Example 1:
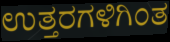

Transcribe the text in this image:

ಉತ್ತರಗಳಿಗಿಂತ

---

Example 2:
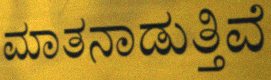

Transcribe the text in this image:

ಮಾತನಾಡುತ್ತಿವೆ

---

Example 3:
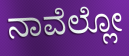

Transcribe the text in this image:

ನಾವೆಲ್ಲೋ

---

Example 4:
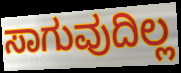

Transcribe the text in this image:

ಸಾಗುವುದಿಲ್ಲ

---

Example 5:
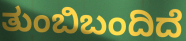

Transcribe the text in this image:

ತುಂಬಿಬಂದಿದೆ